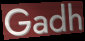
Gadh